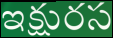
ఇక్షురస